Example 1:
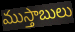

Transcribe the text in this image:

ముస్తాబులు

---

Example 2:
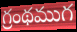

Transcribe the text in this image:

గ్రంథముగ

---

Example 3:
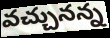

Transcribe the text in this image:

వచ్చునన్న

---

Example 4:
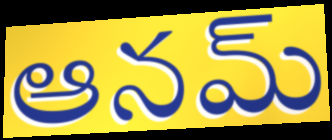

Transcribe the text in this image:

ఆనమ్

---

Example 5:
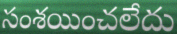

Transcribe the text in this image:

సంశయించలేదు